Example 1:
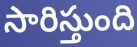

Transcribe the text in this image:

సారిస్తుంది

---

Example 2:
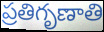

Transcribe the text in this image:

ప్రతిగృణాతి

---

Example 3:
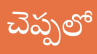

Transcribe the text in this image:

చెప్పలో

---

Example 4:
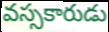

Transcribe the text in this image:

వస్సకారుడు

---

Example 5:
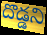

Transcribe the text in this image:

దొడ్డని